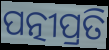
ପତ୍ନୀପ୍ରତି